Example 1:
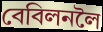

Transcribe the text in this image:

বেবিলনলৈ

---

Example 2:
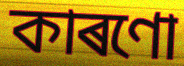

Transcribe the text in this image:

কাৰণো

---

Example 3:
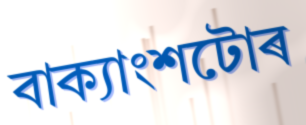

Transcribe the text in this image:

বাক্যাংশটোৰ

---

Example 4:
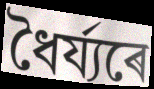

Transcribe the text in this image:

ধৈৰ্য্যৰে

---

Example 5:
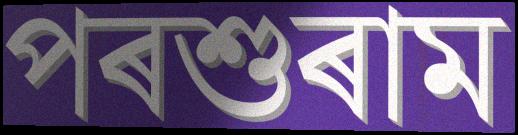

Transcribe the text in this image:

পৰশুৰাম